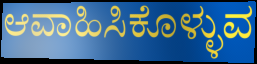
ಆವಾಹಿಸಿಕೊಳ್ಳುವ